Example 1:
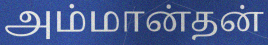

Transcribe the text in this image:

அம்மான்தன்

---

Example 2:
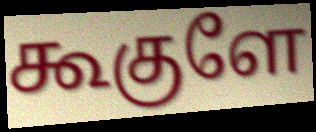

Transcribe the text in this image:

கூகுளே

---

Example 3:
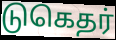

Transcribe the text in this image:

டுகெதர்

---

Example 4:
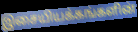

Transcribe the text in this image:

இசையியக்கங்களின்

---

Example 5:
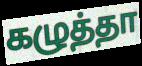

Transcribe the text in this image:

கழுத்தா